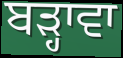
ਬੜ੍ਹਾਵਾ